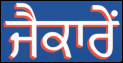
ਜੈਕਾਰੇਂ